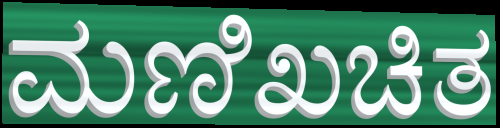
ಮಣಿಖಚಿತ